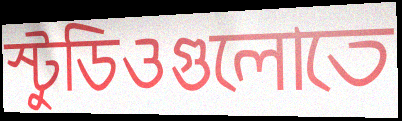
স্টুডিওগুলোতে